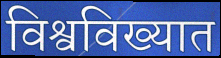
विश्वविख्यात